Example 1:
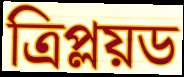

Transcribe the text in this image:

ত্রিপ্লয়ড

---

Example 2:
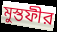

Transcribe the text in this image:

মুস্তফীর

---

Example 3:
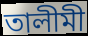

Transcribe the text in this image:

তালীমী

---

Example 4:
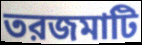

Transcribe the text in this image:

তরজমাটি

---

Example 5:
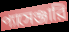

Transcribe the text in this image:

প্যাসেঞ্জারি